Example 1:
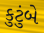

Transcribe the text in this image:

કુટુંબે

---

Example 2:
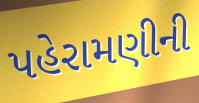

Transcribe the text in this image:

પહેરામણીની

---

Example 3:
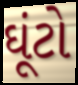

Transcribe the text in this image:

ઘૂંટો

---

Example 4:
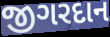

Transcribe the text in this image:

જીગરદાન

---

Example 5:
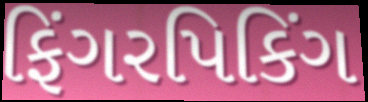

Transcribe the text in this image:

ફિંગરપિકિંગ